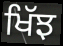
ਖਿੱਝ